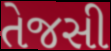
તેજસી